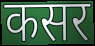
कसर